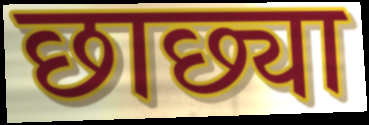
छाछ्या